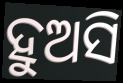
ହୁଅସି